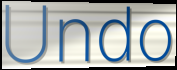
Undo